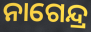
ନାଗେନ୍ଦ୍ର